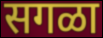
सगळा